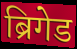
ब्रिगेड